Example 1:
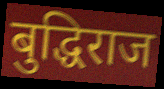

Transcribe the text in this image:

बुद्धिराज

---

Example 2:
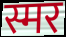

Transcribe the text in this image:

स्मर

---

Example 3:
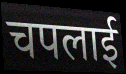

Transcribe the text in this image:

चपलाई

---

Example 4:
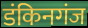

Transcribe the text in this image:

डंकिनगंज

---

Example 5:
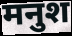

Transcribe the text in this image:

मनुश